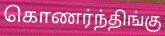
கொணர்ந்திங்கு